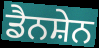
ਡੈਨਸ਼ੇਨ